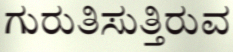
ಗುರುತಿಸುತ್ತಿರುವ